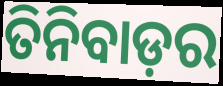
ତିନିବାଡ଼ର